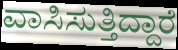
ವಾಸಿಸುತ್ತಿದ್ದಾರೆ